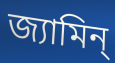
জ্যামিন্